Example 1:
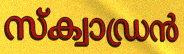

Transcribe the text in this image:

സ്ക്വാഡ്രൻ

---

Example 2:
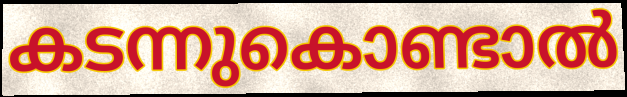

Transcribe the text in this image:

കടന്നുകൊണ്ടാൽ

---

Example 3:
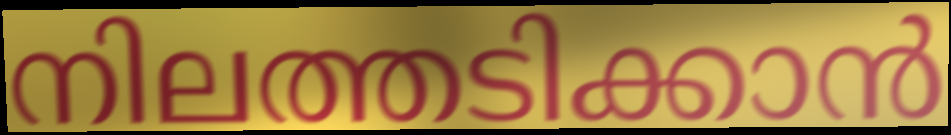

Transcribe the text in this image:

നിലത്തടിക്കാൻ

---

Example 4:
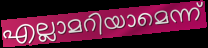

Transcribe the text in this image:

എല്ലാമറിയാമെന്ന്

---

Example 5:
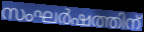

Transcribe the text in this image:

സംഘർഷത്തിന്